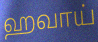
ஹவாய்